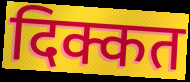
दिक्कत